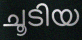
ചൂടിയ